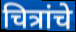
चित्रांचे